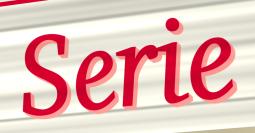
Serie